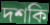
দশকি